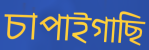
চাপাইগাছি